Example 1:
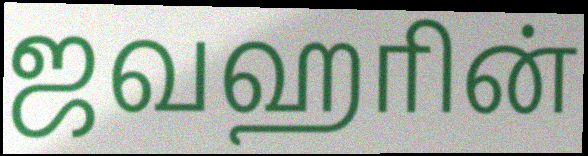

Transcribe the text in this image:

ஜவஹரின்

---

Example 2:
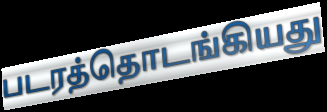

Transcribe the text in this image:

படரத்தொடங்கியது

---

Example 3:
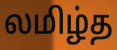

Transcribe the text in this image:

லமிழ்த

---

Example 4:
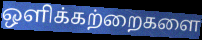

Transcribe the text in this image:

ஒளிக்கற்றைகளை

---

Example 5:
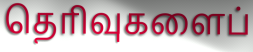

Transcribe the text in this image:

தெரிவுகளைப்